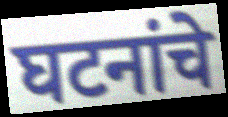
घटनांचे